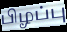
பிழப்பு